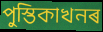
পুস্তিকাখনৰ